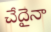
చేదైనా